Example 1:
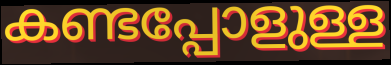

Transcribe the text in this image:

കണ്ടപ്പോളുള്ള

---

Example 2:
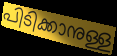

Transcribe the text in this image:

പിടിക്കാനുള്ള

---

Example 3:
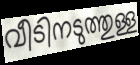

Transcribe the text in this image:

വീടിനടുത്തുള്ള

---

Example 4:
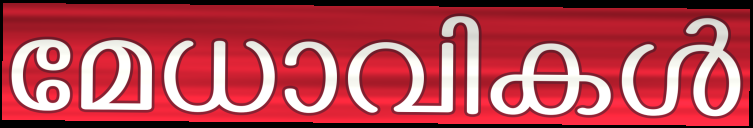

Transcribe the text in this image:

മേധാവികൾ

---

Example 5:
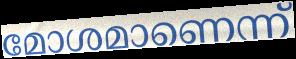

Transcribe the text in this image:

മോശമാണെന്ന്